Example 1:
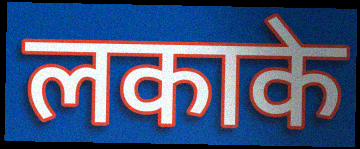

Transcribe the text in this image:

लकाके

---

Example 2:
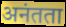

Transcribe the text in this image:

अनंतता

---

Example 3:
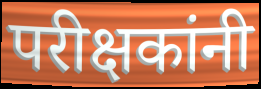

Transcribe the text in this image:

परीक्षकांनी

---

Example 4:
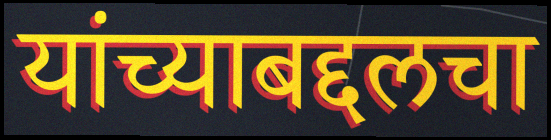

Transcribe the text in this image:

यांच्याबद्दलचा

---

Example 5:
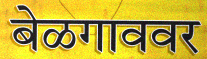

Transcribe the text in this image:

बेळगाववर